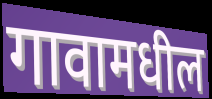
गावामधील